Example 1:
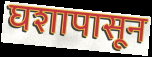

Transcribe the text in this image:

घशापासून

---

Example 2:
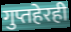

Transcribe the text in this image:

गुप्तहेरही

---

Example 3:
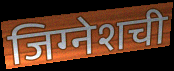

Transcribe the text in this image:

जिग्नेशची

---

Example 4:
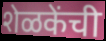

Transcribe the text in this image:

शेळकेंची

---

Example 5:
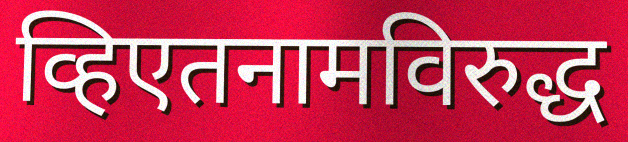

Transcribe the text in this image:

व्हिएतनामविरुद्ध